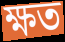
ক্ষত